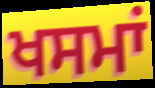
ਖਸਮਾਂ